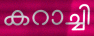
കറാച്ചി